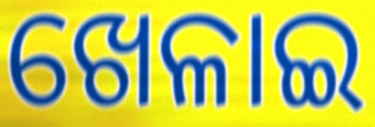
ଖେଳାଇ